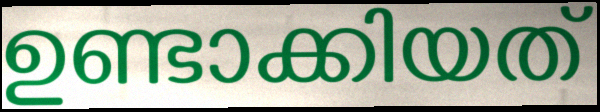
ഉണ്ടാക്കിയത്